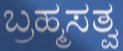
ಬ್ರಹ್ಮಸತ್ವ